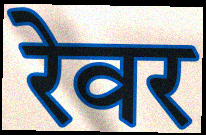
रेवर